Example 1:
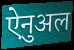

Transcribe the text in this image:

ऐनुअल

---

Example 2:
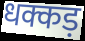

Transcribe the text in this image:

धक्कड़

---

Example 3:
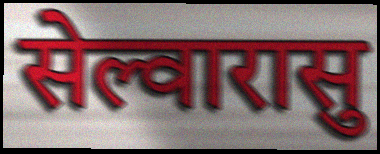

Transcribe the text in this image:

सेल्वारासु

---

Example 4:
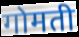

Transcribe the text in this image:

गोमती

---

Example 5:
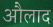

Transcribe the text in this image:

औलाद